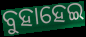
ବୁହାହେଇ